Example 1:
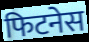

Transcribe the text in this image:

फिटनेस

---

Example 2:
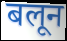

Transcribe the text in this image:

बलून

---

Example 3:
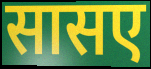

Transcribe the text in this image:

सासए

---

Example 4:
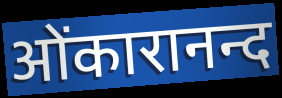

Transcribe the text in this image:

ओंकारानन्द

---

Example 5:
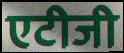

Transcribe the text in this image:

एटीजी